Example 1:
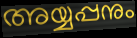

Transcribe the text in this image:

അയ്യപ്പനും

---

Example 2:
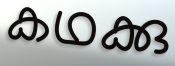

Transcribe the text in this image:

കഥക്കു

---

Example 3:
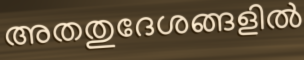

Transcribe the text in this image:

അതതുദേശങ്ങളിൽ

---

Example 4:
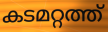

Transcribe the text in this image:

കടമറ്റത്ത്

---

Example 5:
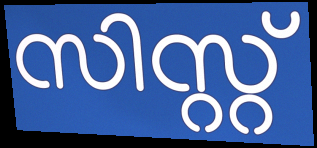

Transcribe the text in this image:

സിസ്റ്റ്